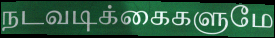
நடவடிக்கைகளுமே